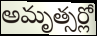
అమృత్సర్లో